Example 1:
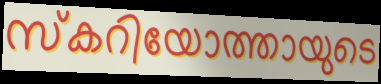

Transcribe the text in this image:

സ്കറിയോത്തായുടെ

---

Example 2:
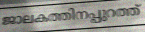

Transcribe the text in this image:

ജാലകത്തിനപ്പുറത്ത്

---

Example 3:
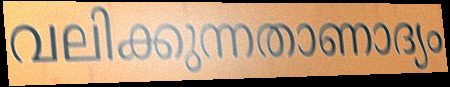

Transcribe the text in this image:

വലിക്കുന്നതാണാദ്യം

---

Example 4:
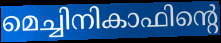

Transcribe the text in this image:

മെച്ചിനികാഫിന്റെ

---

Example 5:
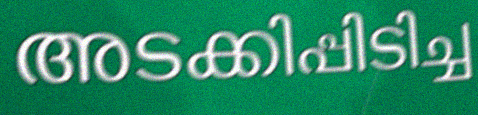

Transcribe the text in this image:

അടക്കിപ്പിടിച്ച